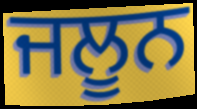
ਜਲੂਨ